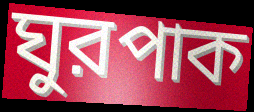
ঘুরপাক